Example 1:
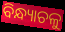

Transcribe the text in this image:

ବିନ୍ଧ୍ୟାଚଳୁ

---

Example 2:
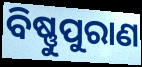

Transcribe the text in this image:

ବିଷ୍ଣୁପୁରାଣ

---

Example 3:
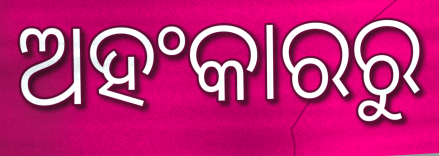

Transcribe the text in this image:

ଅହଂକାରରୁ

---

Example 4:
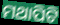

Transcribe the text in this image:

ମଥାପିଟି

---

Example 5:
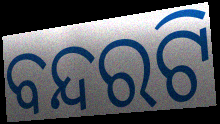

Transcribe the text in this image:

ବନ୍ଦରଟି